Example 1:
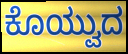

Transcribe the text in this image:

ಕೊಯ್ವುದ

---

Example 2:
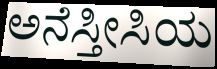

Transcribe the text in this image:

ಅನೆಸ್ತೀಸಿಯ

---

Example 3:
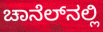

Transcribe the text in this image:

ಚಾನೆಲ್‌ನಲ್ಲಿ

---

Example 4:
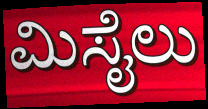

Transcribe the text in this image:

ಮಿಸೈಲು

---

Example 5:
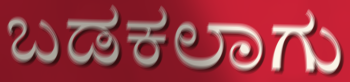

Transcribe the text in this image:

ಬಡಕಲಾಗು